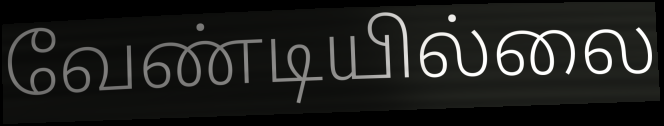
வேண்டியில்லை